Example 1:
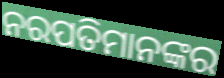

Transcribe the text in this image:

ନରପତିମାନଙ୍କର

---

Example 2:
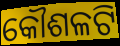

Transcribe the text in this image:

କୌଶଳଟି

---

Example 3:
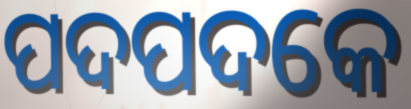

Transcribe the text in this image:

ପଦପଦକେ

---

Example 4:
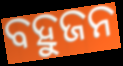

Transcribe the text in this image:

ବହୁଜନ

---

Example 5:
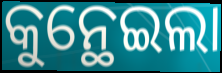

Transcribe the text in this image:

କୁନ୍ଥେଇଲା